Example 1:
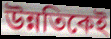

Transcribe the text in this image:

উন্নতিকেই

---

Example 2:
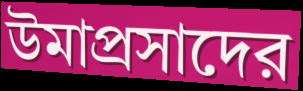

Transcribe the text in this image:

উমাপ্রসাদের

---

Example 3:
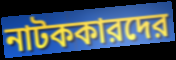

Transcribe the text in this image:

নাটককারদের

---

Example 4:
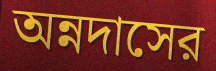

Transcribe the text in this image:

অন্নদাসের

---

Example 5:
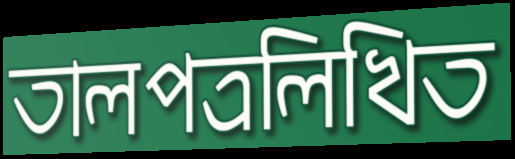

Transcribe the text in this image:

তালপত্রলিখিত